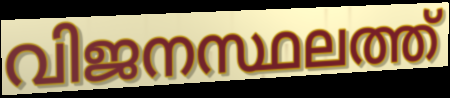
വിജനസ്ഥലത്ത്